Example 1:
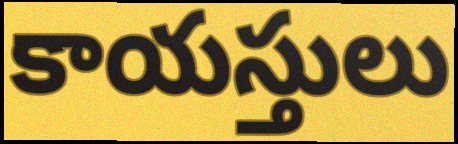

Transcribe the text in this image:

కాయస్తులు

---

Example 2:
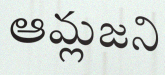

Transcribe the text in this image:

ఆమ్లజని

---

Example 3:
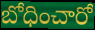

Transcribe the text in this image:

బోధించారో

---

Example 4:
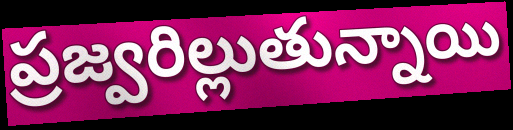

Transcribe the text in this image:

ప్రజ్వరిల్లుతున్నాయి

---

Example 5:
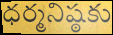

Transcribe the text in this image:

ధర్మనిష్ఠకు